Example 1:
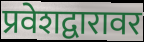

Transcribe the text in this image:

प्रवेशद्वारावर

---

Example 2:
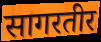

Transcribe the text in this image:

सागरतीर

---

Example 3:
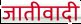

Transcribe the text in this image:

जातीवादी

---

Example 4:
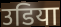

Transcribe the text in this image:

उडिया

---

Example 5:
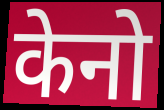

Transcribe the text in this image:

केनो